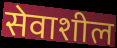
सेवाशील